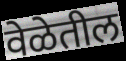
वेळेतील